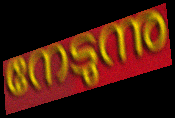
നേടുന്നു